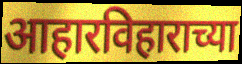
आहारविहाराच्या